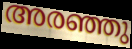
അരഞ്ഞു